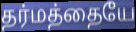
தர்மத்தையே